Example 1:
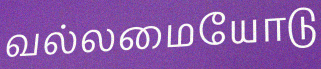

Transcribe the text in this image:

வல்லமையோடு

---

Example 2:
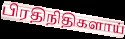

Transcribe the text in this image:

பிரதிநிதிகளாய்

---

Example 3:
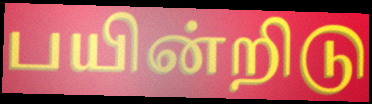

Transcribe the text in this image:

பயின்றிடு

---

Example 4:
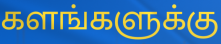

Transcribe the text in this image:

களங்களுக்கு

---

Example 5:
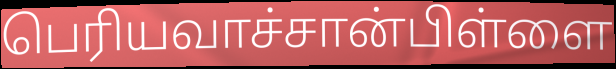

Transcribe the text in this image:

பெரியவாச்சான்பிள்ளை